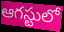
ఆగస్టులో